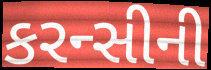
કરન્સીની